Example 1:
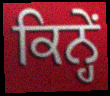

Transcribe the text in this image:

ਕਿਨ੍ਹੇਂ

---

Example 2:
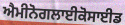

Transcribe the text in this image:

ਐਮੀਨੋਗਲਾਈਕੋਸਾਈਡ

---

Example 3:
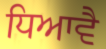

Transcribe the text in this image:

ਧਿਆਵੈ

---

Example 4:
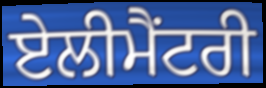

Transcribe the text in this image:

ਏਲੀਮੈਂਟਰੀ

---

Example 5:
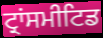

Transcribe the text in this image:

ਟ੍ਰਾਂਸਮੀਟਿਡ